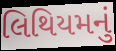
લિથિયમનું